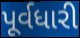
પૂર્વધારી